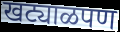
खट्याळपण